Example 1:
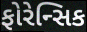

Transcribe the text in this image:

ફોરેન્સિક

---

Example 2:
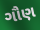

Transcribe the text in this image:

ગૌણ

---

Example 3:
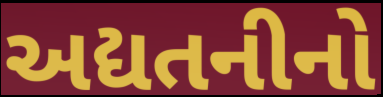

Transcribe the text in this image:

અદ્યતનીનો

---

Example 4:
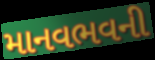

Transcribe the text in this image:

માનવભવની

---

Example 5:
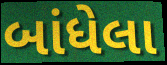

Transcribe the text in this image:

બાંધેલા